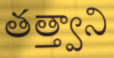
తత్త్వాని